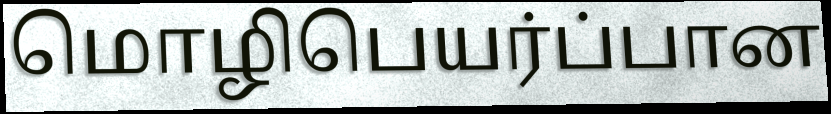
மொழிபெயர்ப்பான